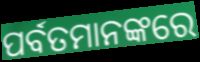
ପର୍ବତମାନଙ୍କରେ